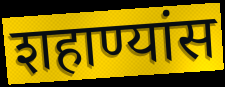
शहाण्यांस